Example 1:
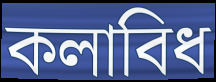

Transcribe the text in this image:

কলাবিধ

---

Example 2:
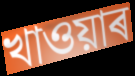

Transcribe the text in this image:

খাওয়াৰ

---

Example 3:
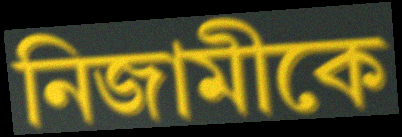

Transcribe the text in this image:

নিজামীকে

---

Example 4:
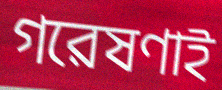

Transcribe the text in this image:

গৱেষণাই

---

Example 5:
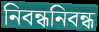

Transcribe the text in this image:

নিবন্ধনিবন্ধ